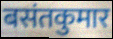
बसंतकुमार